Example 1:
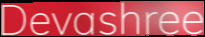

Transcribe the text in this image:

Devashree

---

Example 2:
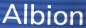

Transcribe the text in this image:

Albion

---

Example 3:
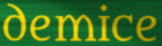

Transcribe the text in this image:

demice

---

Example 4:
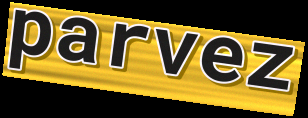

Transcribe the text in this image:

parvez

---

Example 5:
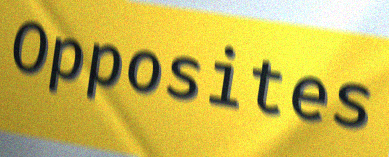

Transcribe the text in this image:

Opposites